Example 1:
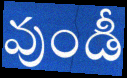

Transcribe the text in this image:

వుండీ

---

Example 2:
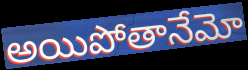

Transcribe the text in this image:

అయిపోతానేమో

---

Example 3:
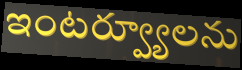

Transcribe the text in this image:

ఇంటర్వ్యూలను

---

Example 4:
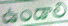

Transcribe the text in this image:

ఉండాలి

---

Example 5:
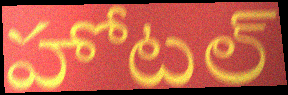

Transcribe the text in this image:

హోటల్